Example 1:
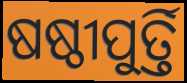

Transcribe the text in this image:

ଷଷ୍ଠୀପୁର୍ତ୍ତି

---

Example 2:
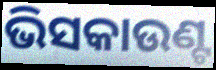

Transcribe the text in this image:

ଭିସକାଉଣ୍ଟ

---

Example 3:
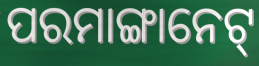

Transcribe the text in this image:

ପରମାଙ୍ଗାନେଟ୍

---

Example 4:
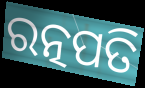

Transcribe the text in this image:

ରତ୍ନପତି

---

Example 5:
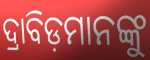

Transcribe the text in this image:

ଦ୍ରାବିଡ଼ମାନଙ୍କୁ